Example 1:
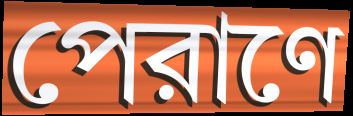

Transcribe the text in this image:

পেরাণে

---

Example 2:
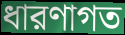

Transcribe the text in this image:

ধারণাগত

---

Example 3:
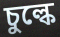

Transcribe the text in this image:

চুল্কে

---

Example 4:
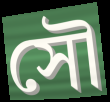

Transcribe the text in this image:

সৌ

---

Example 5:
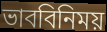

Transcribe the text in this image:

ভাববিনিময়